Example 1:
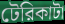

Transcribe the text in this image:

টেরিকাটা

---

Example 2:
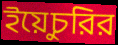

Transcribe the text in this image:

ইয়েচুরির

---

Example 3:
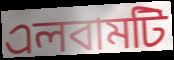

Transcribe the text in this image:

এলবামটি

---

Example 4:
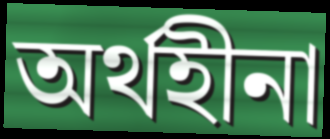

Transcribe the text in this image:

অর্থহীনা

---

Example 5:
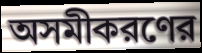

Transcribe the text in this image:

অসমীকরণের